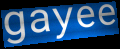
gayee